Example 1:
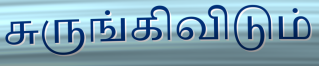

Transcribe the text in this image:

சுருங்கிவிடும்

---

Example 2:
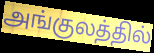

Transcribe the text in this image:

அங்குலத்தில்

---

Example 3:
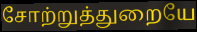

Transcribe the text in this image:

சோற்றுத்துறையே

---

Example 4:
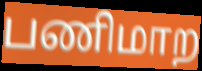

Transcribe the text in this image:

பணிமாற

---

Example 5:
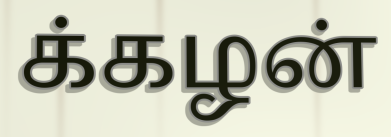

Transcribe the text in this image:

க்கழன்